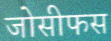
जोसीफस